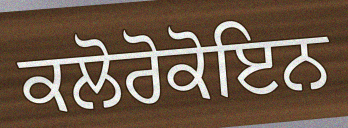
ਕਲੋਰੋਕੋਇਨ